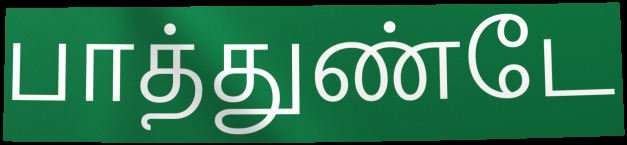
பாத்துண்டே